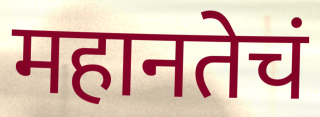
महानतेचं